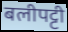
बलीपट्टी